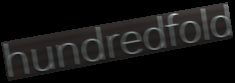
hundredfold